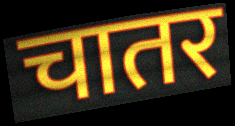
चातर